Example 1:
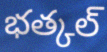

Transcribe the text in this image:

భత్కల్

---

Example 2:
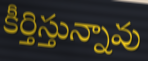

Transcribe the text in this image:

కీర్తిస్తున్నావు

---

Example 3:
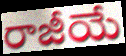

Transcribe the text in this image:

రాజీయే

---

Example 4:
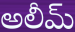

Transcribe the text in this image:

అలీమ్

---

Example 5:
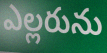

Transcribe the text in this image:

ఎల్లరును